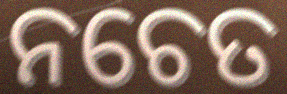
ନଚେତ